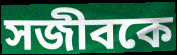
সজীবকে